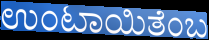
ಉಂಟಾಯಿತೆಂಬ